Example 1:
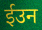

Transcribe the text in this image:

ईउन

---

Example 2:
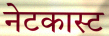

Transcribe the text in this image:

नेटकास्ट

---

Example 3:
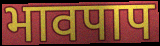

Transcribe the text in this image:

भावपाप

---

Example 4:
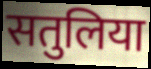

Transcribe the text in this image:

सतुलिया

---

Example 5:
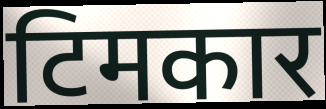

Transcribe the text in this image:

टिमकार